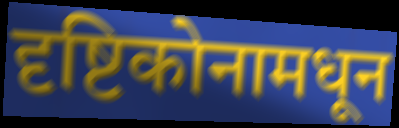
दृष्टिकोनामधून